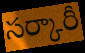
సర్కారీ